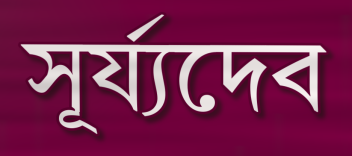
সূর্য্যদেব